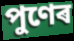
পুণেৰ